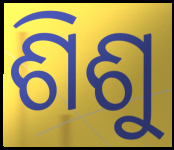
ଶିଶୁ